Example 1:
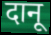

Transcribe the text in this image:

दानू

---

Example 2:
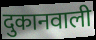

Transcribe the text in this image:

दुकानवाली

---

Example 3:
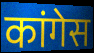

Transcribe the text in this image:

कांगेस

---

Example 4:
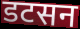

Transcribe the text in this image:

डटसन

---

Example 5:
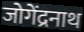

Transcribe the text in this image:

जोगेंद्रनाथ